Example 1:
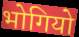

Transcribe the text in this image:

भोगियो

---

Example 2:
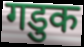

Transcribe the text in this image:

गडुक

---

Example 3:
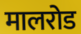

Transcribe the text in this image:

मालरोड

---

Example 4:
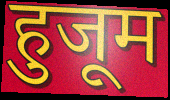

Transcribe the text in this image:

हुजूम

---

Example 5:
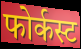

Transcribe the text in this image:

फोर्कस्ट